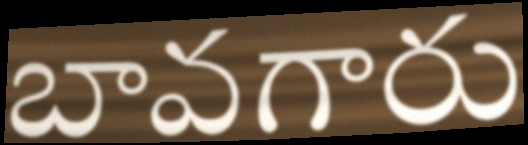
బావగారు